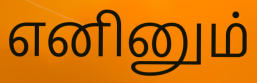
எனினும்